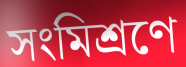
সংমিশ্ৰণে